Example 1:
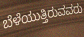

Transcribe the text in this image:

ಬೆಳೆಯುತ್ತಿರುವವರು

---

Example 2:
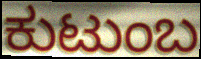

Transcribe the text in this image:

ಕುಟುಂಬ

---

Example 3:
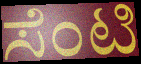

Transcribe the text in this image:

ಸೆಂಟಿ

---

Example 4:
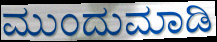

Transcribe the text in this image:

ಮುಂದುಮಾಡಿ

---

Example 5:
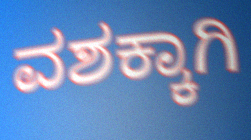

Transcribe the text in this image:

ವಶಕ್ಕಾಗಿ